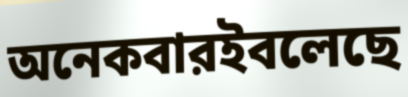
অনেকবারইবলেছে